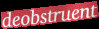
deobstruent